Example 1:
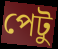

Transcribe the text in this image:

পেটু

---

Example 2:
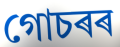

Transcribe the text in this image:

গোচৰৰ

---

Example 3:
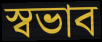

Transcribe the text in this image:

স্বভাব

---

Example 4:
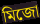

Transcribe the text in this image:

মিজো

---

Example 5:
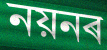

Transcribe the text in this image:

নয়নৰ